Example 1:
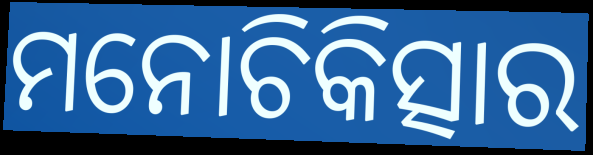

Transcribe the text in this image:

ମନୋଚିକିତ୍ସାର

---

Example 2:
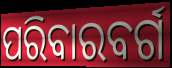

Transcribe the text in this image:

ପରିବାରବର୍ଗ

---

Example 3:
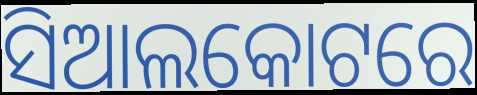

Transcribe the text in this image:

ସିଆଲକୋଟରେ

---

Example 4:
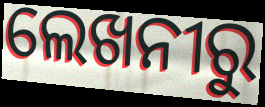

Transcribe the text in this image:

ଲେଖନୀରୁ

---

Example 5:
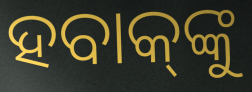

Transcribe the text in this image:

ହବାକ୍‌ଙ୍କୁ